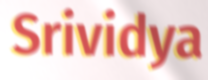
Srividya